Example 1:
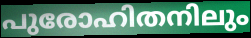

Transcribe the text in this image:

പുരോഹിതനിലും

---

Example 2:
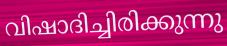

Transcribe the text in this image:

വിഷാദിച്ചിരിക്കുന്നു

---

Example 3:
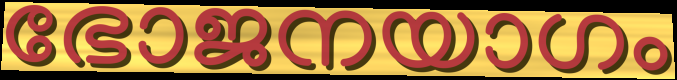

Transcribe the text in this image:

ഭോജനയാഗം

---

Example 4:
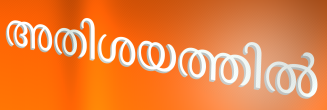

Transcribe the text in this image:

അതിശയത്തിൽ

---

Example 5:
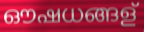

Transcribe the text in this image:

ഔഷധങ്ങള്